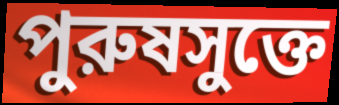
পুরুষসুক্তে